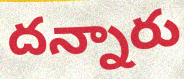
దన్నారు